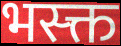
भस्क्त